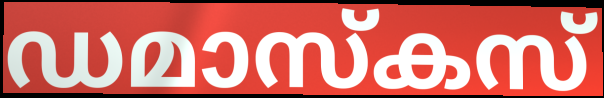
ഡമാസ്കസ്